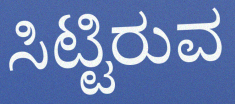
ಸಿಟ್ಟಿರುವ